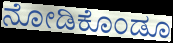
ನೋಡಿಕೊಂಡೂ